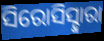
ସିରୋସିସ୍ଦ୍ୱାରା